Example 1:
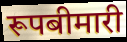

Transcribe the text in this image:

रूपबीमारी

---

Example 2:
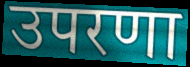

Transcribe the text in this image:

उपरणा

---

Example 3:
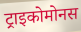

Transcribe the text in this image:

ट्राइकोमोनस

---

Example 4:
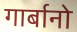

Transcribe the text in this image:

गार्बानो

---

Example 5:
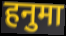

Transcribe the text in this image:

हनुमा